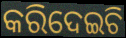
କରିଦେଇଚି